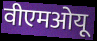
वीएमओयू